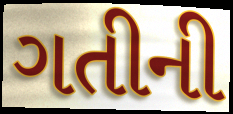
ગતીની